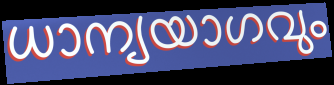
ധാന്യയാഗവും